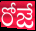
రోజే